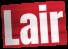
Lair